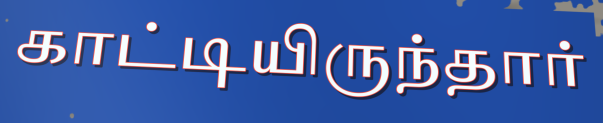
காட்டியிருந்தார்